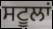
ਸਟੂਲਾਂ